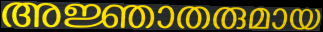
അജ്ഞാതരുമായ